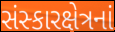
સંસ્કારક્ષેત્રનાં